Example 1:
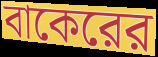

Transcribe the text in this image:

বাকেরের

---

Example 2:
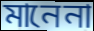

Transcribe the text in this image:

মানেনা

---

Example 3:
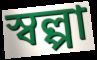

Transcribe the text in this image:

স্বল্পা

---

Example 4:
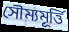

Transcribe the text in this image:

সৌম্যমূর্ত্তি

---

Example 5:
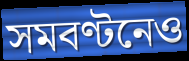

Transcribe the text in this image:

সমবণ্টনেও